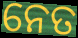
ନେତ